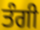
ਤੰਗੀ